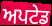
ਅਪਟੇਡ